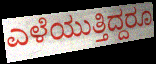
ಎಳೆಯುತ್ತಿದ್ದರೂ